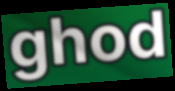
ghod